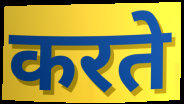
करते